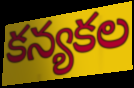
కన్యకల